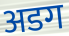
अडग